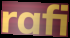
rafi